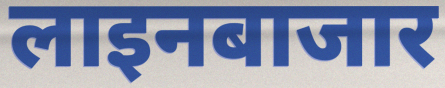
लाइनबाजार